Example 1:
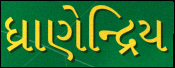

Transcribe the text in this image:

ધ્રાણેન્દ્રિય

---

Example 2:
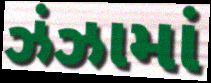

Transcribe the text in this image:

ઝંઝામાં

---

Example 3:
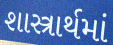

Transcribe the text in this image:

શાસ્ત્રાર્થમાં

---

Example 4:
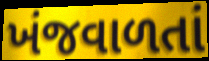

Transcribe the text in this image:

ખંજવાળતાં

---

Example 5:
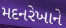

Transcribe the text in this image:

મદનરેખાને